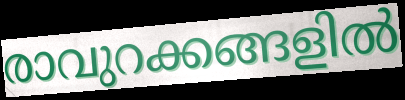
രാവുറക്കങ്ങളിൽ